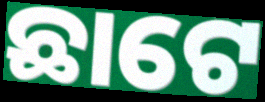
ଛାଟେ